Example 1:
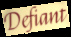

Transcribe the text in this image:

Defiant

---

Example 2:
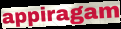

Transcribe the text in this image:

appiragam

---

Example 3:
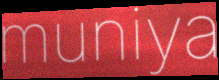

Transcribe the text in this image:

muniya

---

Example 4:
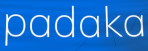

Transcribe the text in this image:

padaka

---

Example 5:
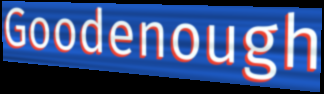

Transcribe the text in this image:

Goodenough